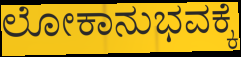
ಲೋಕಾನುಭವಕ್ಕೆ